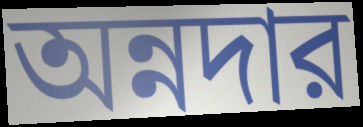
অন্নদার